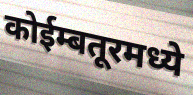
कोईम्बतूरमध्ये